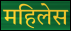
महिलेस